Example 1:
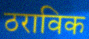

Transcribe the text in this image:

ठराविक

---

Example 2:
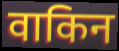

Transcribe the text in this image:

वाकिन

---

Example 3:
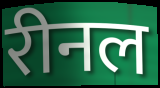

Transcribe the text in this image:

रीनल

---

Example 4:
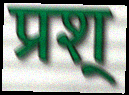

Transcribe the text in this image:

प्रश्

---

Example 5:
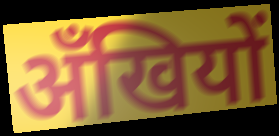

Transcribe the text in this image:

अँखियों